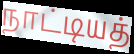
நாட்டியத்